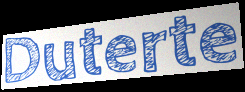
Duterte